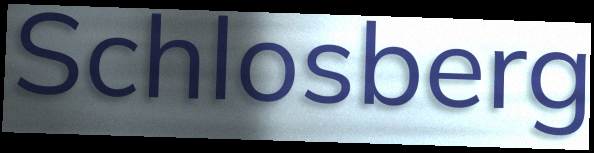
Schlosberg